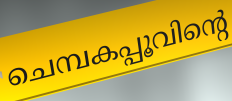
ചെമ്പകപ്പൂവിന്റെ